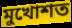
মুখোশত